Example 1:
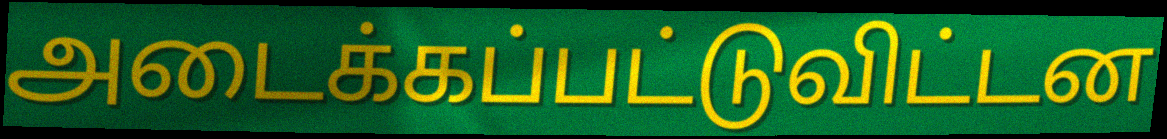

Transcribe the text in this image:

அடைக்கப்பட்டுவிட்டன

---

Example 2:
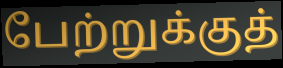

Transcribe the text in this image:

பேற்றுக்குத்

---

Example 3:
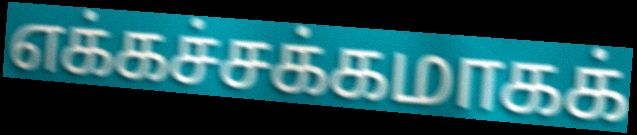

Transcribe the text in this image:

எக்கச்சக்கமாகக்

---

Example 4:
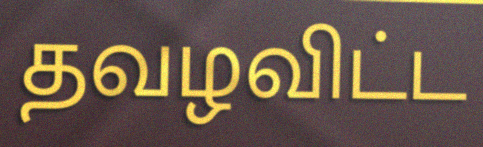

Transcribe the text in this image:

தவழவிட்ட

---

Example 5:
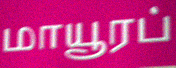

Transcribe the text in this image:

மாயூரப்